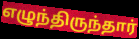
எழுந்திருந்தார்